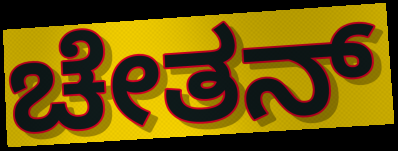
ಚೇತನ್